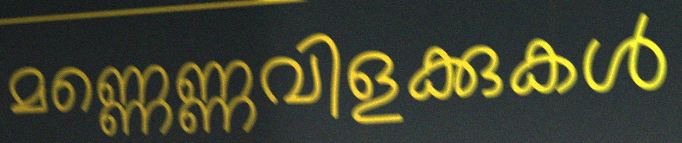
മണ്ണെണ്ണവിളക്കുകൾ